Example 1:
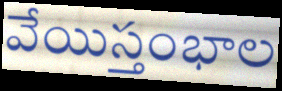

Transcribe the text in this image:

వేయిస్తంభాల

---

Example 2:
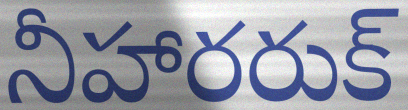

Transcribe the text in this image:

నీహారరుక్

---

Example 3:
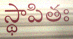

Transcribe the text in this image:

స్థాపితః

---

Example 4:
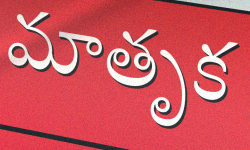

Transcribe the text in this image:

మాతృక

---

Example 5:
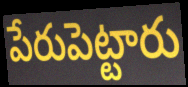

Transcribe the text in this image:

పేరుపెట్టారు